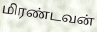
மிரண்டவன்